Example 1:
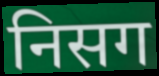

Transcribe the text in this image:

निसग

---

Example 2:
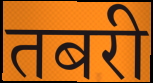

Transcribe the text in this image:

तबरी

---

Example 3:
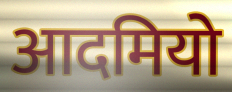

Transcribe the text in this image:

आदमियो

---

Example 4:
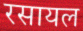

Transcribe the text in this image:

रसायल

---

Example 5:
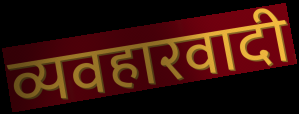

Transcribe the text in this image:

व्यवहारवादी